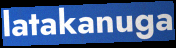
latakanuga